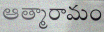
ఆత్మారామం